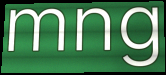
mng